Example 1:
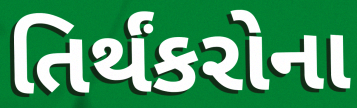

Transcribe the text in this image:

તિર્થંકરોના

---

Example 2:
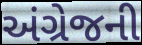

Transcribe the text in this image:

અંગ્રેજની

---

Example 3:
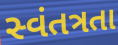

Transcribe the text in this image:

સ્વંતત્રતા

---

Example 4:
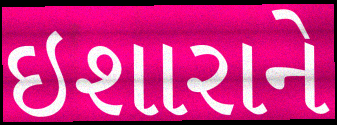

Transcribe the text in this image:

ઇશારાને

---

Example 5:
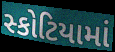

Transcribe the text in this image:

સ્કોટિયામાં